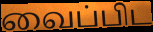
வைப்பிட